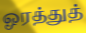
ஓரத்துத்